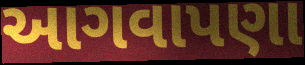
આગવાપણા